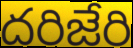
దరిజేరి